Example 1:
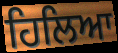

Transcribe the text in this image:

ਹਿਲਿਆ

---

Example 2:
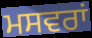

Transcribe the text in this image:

ਮਸਵਰਾਂ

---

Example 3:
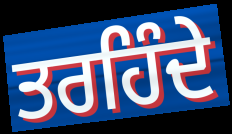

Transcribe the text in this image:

ਤਰਹਿੰਦੇ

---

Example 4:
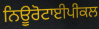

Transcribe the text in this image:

ਨਿਊਰੋਟਾਈਪੀਕਲ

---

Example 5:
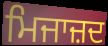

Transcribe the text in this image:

ਮਿਜਾਜ਼ਦ